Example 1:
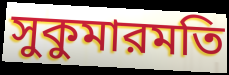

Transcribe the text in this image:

সুকুমারমতি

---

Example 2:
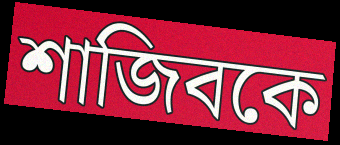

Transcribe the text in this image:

শাজিবকে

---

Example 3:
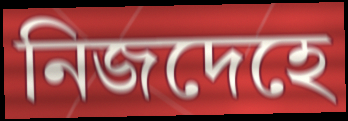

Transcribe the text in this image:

নিজদেহে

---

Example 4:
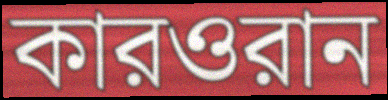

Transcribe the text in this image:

কারওরান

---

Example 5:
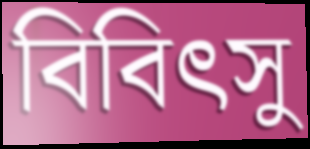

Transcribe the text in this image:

বিবিৎসু